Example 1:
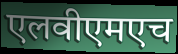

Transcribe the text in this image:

एलवीएमएच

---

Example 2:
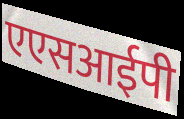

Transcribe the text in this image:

एएसआईपी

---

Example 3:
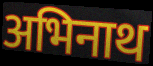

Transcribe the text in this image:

अभिनाथ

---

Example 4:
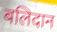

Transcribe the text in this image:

बलिदान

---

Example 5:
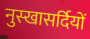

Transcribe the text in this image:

नुस्खासर्दियों